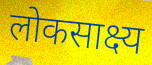
लोकसाक्ष्य